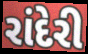
રાંદેરી